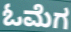
ಓಮೆಗ